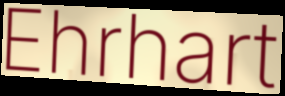
Ehrhart